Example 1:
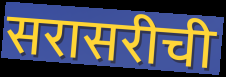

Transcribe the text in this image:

सरासरीची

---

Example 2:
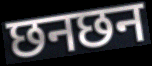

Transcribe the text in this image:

छनछन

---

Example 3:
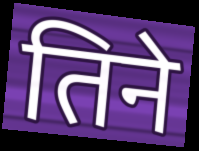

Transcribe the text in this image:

तिने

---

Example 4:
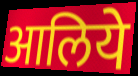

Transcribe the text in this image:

आलिये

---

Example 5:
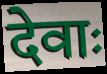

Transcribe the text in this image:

देवाः